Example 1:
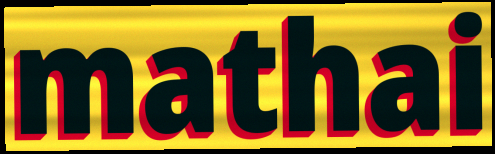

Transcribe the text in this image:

mathai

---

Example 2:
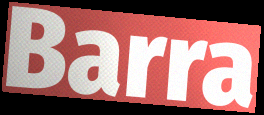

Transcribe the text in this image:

Barra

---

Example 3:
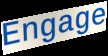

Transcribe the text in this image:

Engage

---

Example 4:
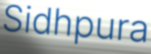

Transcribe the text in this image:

Sidhpura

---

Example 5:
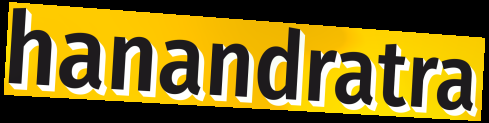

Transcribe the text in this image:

hanandratra